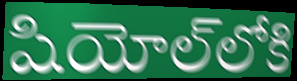
షియోల్‌లోకి